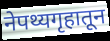
नेपथ्यगृहातून